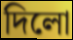
দিলো